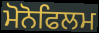
ਮੋਨੋਫਿਲਮ